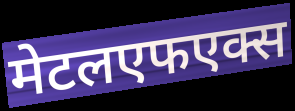
मेटलएफएक्स